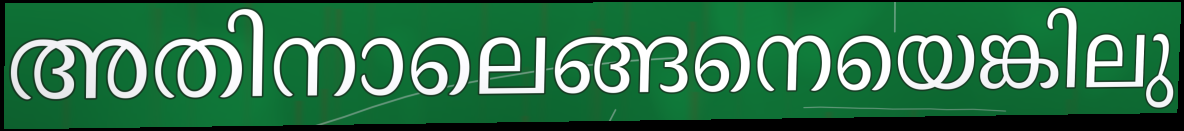
അതിനാലെങ്ങനെയെങ്കിലു